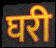
घरी